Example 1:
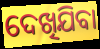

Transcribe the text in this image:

ଦେଖିଯିବା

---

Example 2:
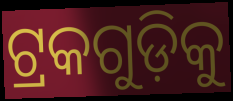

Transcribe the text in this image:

ଟ୍ରକଗୁଡ଼ିକୁ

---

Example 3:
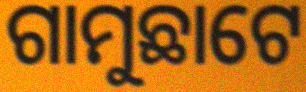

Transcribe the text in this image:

ଗାମୁଛାଟେ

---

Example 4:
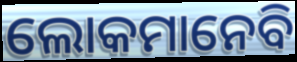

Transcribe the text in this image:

ଲୋକମାନେବି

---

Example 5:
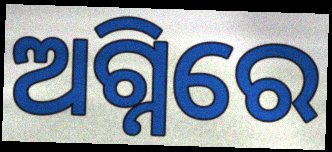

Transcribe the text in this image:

ଅଗ୍ନିରେ